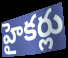
హైకర్లు